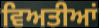
ਵਿਅਤੀਆਂ